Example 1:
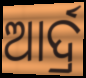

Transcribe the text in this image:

ଆର୍ଦ୍ର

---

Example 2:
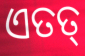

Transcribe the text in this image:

ଏତତ୍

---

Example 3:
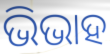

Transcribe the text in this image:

ଭିଭାହ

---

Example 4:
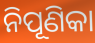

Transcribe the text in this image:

ନିପୂଣିକା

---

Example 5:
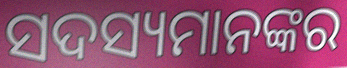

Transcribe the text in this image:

ସଦସ୍ୟମାନଙ୍କର